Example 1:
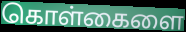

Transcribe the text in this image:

கொள்கைளை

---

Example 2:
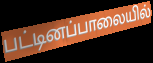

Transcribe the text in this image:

பட்டினப்பாலையில்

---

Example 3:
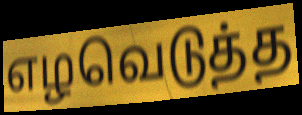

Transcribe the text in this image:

எழவெடுத்த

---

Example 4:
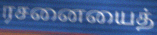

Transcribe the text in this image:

ரசனையைத்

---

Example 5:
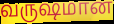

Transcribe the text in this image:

வருஷமான